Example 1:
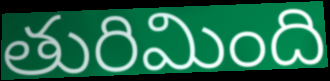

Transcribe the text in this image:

తురిమింది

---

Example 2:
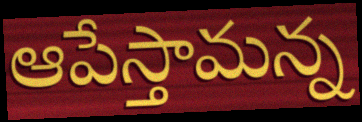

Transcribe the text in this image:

ఆపేస్తామన్న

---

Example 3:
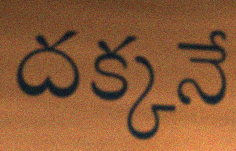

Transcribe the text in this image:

దక్కనే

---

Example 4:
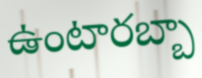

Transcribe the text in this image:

ఉంటారబ్బా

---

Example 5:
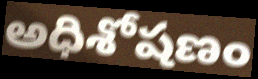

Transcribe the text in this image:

అధిశోషణం